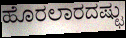
ಹೊರಲಾರದಷ್ಟು